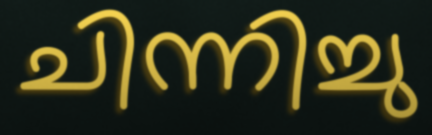
ചിന്നിച്ചു